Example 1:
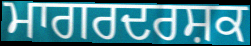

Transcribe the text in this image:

ਮਾਗਰਦਰਸ਼ਕ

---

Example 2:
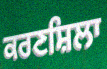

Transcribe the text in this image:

ਕਰਣਸ਼ਿਲਾ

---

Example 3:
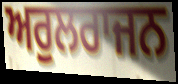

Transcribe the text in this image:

ਅਰੁਲਰਾਜਨ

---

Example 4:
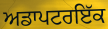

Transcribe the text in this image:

ਅਡਾਪਟਰਇੱਕ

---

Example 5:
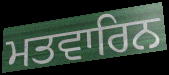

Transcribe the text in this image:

ਮਤਵਾਰਿਨ